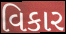
વિકાર